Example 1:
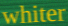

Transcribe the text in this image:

whiter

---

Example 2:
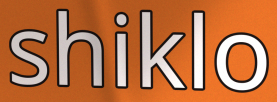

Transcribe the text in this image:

shiklo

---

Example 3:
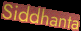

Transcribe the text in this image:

Siddhanta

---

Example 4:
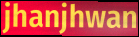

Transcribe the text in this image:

jhanjhwan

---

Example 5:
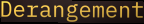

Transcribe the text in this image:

Derangement